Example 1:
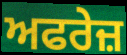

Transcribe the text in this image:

ਅਫਰੇਜ਼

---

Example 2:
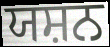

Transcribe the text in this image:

ਯਸ਼ਨ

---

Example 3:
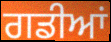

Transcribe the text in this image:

ਗਡੀਆਂ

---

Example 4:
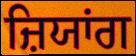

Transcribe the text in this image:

ਜ਼ਿਯਾਂਗ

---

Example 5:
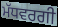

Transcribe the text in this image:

ਮੱਧਵਰਗੀ